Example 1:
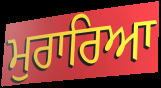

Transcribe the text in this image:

ਮੁਰਾਰਿਆ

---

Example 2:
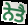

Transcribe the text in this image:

ਨੇਤੈ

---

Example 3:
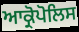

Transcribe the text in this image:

ਆਕ੍ਰੋਪੋਲਿਸ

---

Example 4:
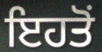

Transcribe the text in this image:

ਇਹਤੋਂ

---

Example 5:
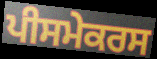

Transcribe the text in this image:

ਪੀਸਮੇਕਰਸ